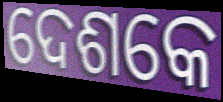
ଦେଶକେ